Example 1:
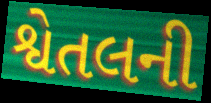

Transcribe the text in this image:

શ્વેતલની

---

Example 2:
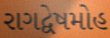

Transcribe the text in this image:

રાગદ્વેષમોહ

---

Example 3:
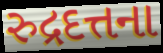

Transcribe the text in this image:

રુદ્રદત્તના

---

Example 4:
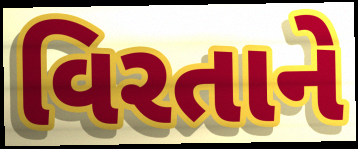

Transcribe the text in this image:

વિરતાને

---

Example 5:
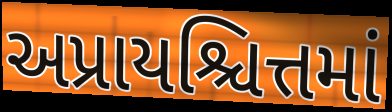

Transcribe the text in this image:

અપ્રાયશ્ચિત્તમાં